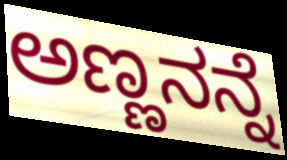
ಅಣ್ಣನನ್ನೆ